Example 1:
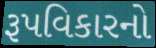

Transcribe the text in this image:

રૂપવિકારનો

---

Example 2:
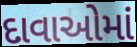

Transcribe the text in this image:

દાવાઓમાં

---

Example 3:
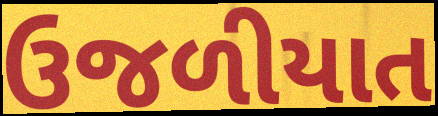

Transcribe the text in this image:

ઉજળીયાત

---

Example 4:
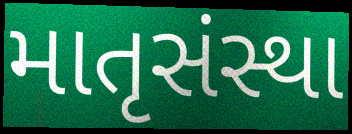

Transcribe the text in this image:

માતૃસંસ્થા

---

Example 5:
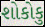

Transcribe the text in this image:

શોકોકુ